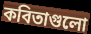
কবিতাগুলো